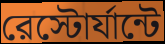
রেস্টোর্যান্টে